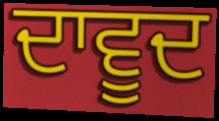
ਦਾਵੂਦ